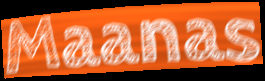
Maanas